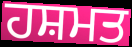
ਹਸ਼ਮਤ